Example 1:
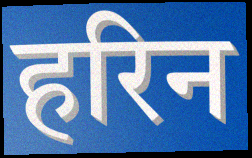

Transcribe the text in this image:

हरिन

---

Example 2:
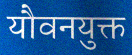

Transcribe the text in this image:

यौवनयुक्त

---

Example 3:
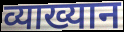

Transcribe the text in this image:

व्याख्यान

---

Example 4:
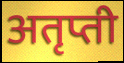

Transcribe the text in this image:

अतृप्ती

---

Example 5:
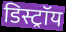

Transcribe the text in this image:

डिस्ट्रॉय